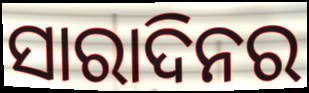
ସାରାଦିନର